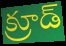
క్రూడ్